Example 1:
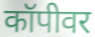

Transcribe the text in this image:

कॉपीवर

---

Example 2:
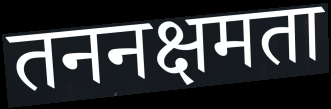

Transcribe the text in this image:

तननक्षमता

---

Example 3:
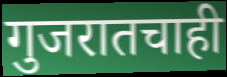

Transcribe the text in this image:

गुजरातचाही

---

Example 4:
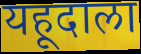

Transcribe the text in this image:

यहूदाला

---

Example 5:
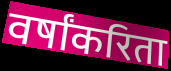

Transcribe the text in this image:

वर्षांकरिता